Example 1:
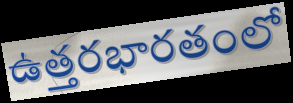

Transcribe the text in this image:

ఉత్తరభారతంలో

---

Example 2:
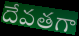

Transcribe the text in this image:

దేవతగా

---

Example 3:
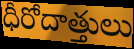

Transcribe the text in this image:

ధీరోదాత్తులు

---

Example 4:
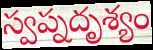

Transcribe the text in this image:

స్వప్నదృశ్యం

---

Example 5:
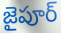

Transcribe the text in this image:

జైపూర్